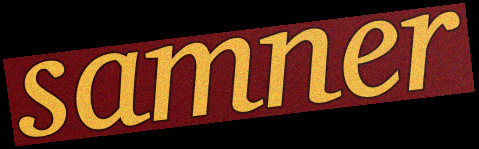
samner